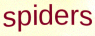
spiders